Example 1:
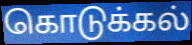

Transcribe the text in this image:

கொடுக்கல்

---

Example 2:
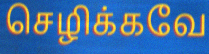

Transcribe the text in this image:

செழிக்கவே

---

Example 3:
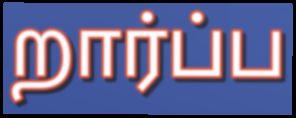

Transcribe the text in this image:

றார்ப்ப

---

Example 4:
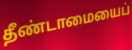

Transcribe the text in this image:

தீண்டாமையைப்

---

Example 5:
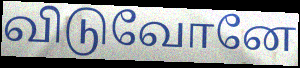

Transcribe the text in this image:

விடுவோனே